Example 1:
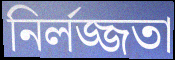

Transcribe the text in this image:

নির্লজ্জতা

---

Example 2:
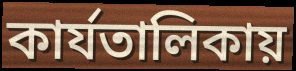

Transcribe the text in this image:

কার্যতালিকায়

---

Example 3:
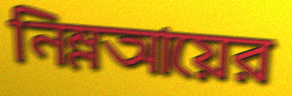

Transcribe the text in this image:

নিম্নআয়ের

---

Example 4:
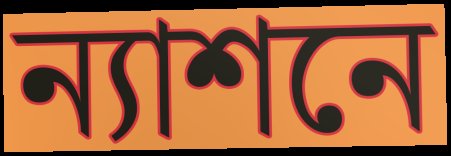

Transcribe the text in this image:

ন্যাশনে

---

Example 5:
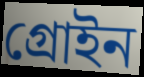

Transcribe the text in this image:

গ্রোইন